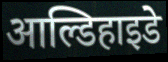
आल्डिहाइडे